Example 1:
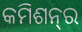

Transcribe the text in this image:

କମିଶନ୍‌ର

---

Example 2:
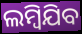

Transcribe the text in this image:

ଲମ୍ୱିଯିବ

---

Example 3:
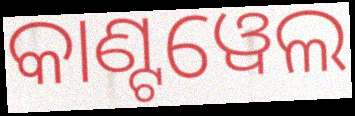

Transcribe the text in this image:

କାଣ୍ଟୱେଲ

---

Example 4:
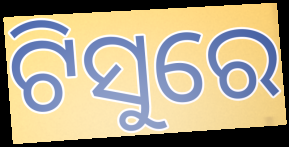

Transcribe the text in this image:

ଟିସୁରେ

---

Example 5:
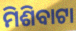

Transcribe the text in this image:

ମିଶିବାଟା